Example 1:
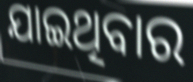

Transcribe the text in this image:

ଯାଇଥିବାର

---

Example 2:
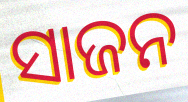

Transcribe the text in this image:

ସାଜନ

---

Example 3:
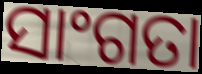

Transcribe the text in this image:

ସାଂଗତା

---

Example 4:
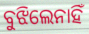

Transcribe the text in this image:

ବୁଝିଲେନାହିଁ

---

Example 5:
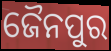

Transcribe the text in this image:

ଜୈନପୁର